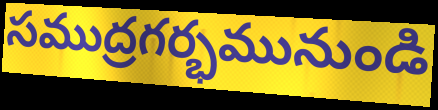
సముద్రగర్భమునుండి